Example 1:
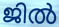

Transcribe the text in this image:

ജിൽ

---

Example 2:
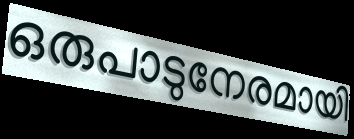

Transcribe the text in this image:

ഒരുപാടുനേരമായി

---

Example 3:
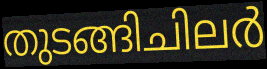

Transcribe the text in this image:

തുടങ്ങിചിലർ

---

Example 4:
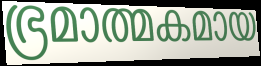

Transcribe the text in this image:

ഭ്രമാത്മകമായ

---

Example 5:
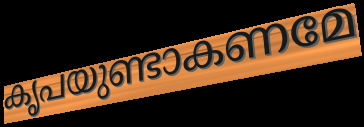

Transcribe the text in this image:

കൃപയുണ്ടാകണമേ